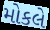
મોકલે